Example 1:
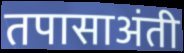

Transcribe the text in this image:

तपासाअंती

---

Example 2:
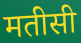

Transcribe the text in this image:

मतीसी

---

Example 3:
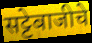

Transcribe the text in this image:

सट्टेबाजीचे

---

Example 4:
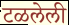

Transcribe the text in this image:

टळलेली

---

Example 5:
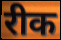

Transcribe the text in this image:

रीक